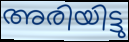
അരിയിട്ടു